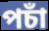
পচাঁ